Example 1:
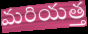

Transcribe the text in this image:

మరియత్త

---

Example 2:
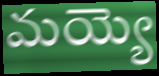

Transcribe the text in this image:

మయ్యె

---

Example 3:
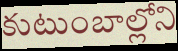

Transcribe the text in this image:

కుటుంబాల్లోని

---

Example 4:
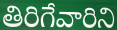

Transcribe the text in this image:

తిరిగేవారిని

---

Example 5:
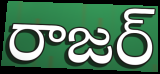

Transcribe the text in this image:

రాజర్